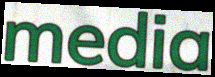
media